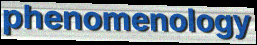
phenomenology